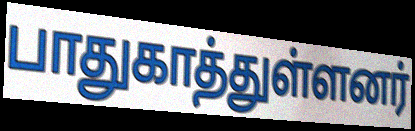
பாதுகாத்துள்ளனர்